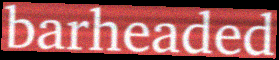
barheaded